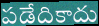
పడేదికాదు